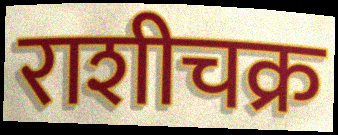
राशीचक्र